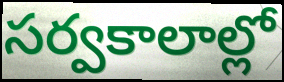
సర్వకాలాల్లో